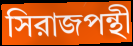
সিরাজপন্থী